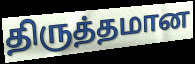
திருத்தமான